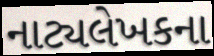
નાટ્યલેખકના